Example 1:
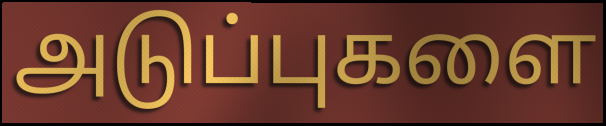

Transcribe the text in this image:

அடுப்புகளை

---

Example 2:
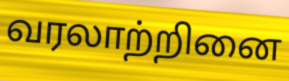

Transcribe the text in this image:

வரலாற்றினை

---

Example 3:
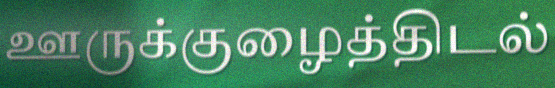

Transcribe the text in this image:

ஊருக்குழைத்திடல்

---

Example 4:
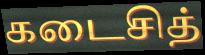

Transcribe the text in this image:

கடைசித்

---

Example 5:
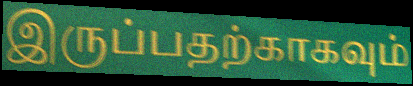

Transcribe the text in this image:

இருப்பதற்காகவும்